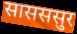
सासससुर